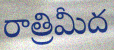
రాత్రిమీద